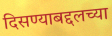
दिसण्याबद्दलच्या